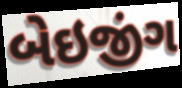
બેઇજીંગ